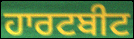
ਹਾਰਟਬੀਟ